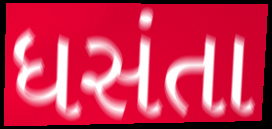
ધસંતા